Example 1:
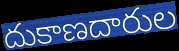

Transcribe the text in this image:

దుకాణదారుల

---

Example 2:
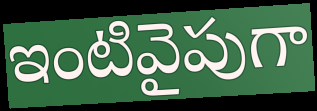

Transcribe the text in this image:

ఇంటివైపుగా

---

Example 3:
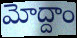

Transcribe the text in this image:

మోద్దాం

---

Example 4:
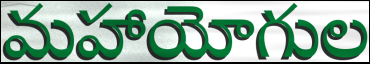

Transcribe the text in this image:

మహాయోగుల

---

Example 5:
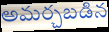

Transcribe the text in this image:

అమర్చబడిన